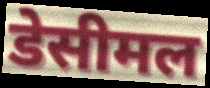
डेसीमल